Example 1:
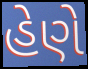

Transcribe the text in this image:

હેણે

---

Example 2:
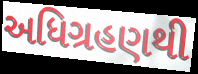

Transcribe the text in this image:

અધિગ્રહણથી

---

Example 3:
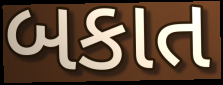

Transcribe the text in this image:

બકાત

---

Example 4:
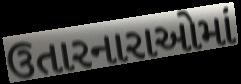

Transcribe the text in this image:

ઉતારનારાઓમાં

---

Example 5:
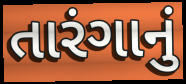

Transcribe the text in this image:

તારંગાનું